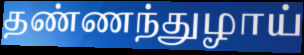
தண்ணந்துழாய்